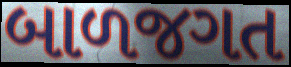
બાળજગત